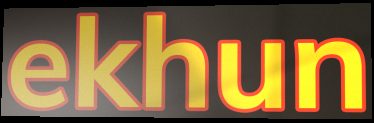
ekhun